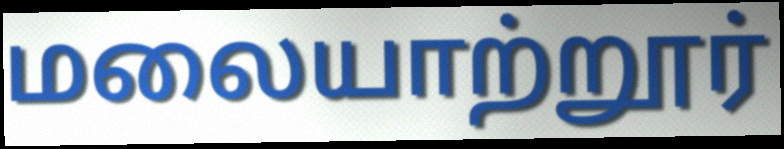
மலையாற்றூர்